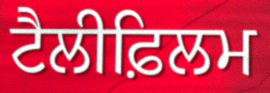
ਟੈਲੀਫ਼ਿਲਮ